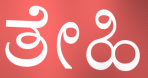
ತೇಹಿ